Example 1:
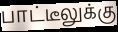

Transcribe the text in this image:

பாட்டீலுக்கு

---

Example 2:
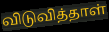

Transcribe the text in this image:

விடுவித்தாள்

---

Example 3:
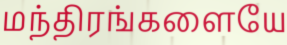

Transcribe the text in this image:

மந்திரங்களையே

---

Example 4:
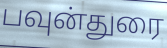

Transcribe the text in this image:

பவுன்துரை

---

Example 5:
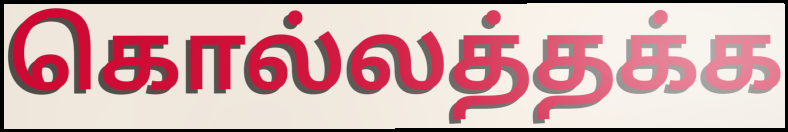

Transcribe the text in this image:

கொல்லத்தக்க